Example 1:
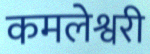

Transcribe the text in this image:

कमलेश्वरी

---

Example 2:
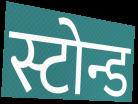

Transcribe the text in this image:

स्टोन्ड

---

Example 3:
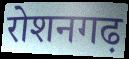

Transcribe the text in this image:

रोशनगढ़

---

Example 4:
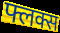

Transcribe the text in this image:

फ्लक्स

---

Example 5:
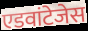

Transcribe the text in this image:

एडवांटेजेस